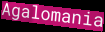
Agalomania